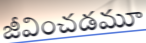
జీవించడమూ